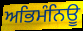
ਅਭਿਮੰਨਿਊ